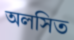
অলসিত